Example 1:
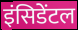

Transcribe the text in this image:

इंसिडेंटल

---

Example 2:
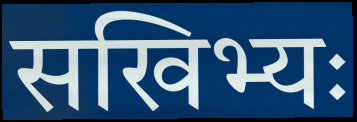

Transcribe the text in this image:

सखिभ्यः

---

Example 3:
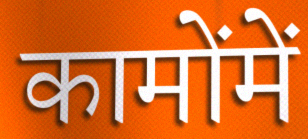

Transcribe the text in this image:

कामोंमें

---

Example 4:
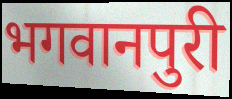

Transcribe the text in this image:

भगवानपुरी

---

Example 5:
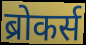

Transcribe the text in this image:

ब्रोकर्स